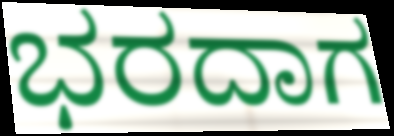
ಭರದಾಗ